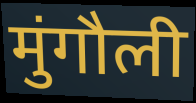
मुंगौली